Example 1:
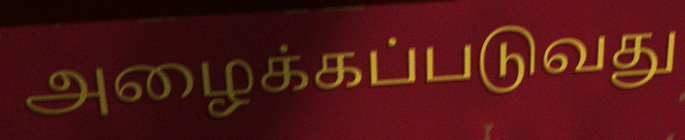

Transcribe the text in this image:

அழைக்கப்படுவது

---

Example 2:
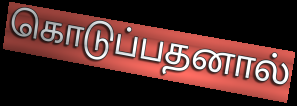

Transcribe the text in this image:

கொடுப்பதனால்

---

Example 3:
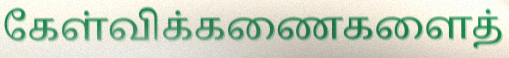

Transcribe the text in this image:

கேள்விக்கணைகளைத்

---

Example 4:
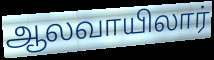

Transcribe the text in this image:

ஆலவாயிலார்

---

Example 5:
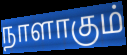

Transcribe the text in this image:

நாளாகும்